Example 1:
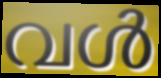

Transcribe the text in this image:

വൾ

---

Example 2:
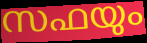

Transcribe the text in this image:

സഫയും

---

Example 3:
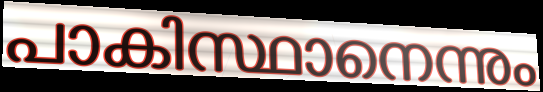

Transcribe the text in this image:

പാകിസ്ഥാനെന്നും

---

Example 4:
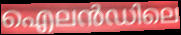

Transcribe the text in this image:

ഐലൻഡിലെ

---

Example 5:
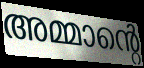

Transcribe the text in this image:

അമ്മാന്റെ